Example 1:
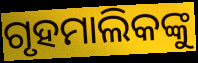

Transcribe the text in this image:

ଗୃହମାଲିକଙ୍କୁ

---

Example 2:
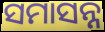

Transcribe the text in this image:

ସମାସନ୍ନ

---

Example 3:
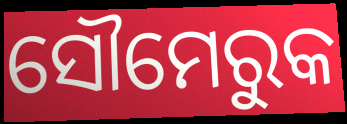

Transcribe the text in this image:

ସୌମେରୁକ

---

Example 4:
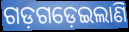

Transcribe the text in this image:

ଗଡ଼ଗଡ଼େଇଲାଣି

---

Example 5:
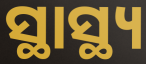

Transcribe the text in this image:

ସ୍ଥାସ୍ଥ୍ୟ